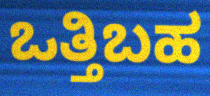
ಒತ್ತಿಬಹ